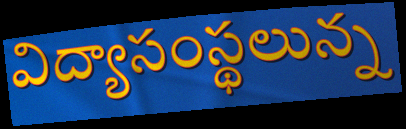
విద్యాసంస్థలున్న